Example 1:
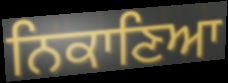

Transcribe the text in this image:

ਨਿਕਾਣਿਆ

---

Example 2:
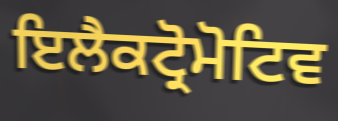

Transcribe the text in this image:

ਇਲੈਕਟ੍ਰੋਮੋਟਿਵ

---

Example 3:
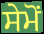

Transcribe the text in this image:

ਸੇਮੋਂ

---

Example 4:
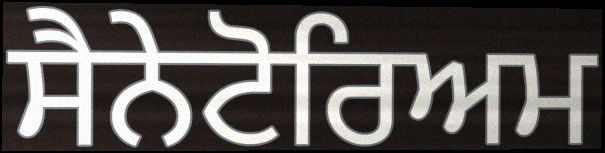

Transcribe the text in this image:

ਸੈਨੇਟੋਰਿਅਮ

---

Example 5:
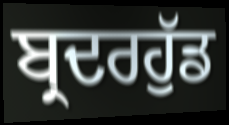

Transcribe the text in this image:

ਬ੍ਰਦਰਹੁੱਡ